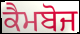
ਕੈਮਬੋਜ